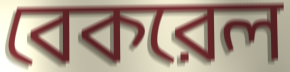
বেকরেল